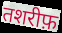
तशरीफ़